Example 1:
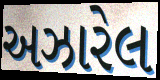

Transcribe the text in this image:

અઝારેલ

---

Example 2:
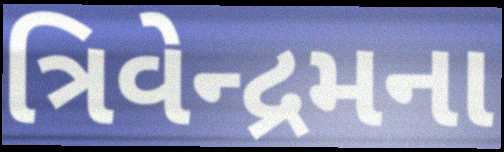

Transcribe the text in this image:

ત્રિવેન્દ્રમના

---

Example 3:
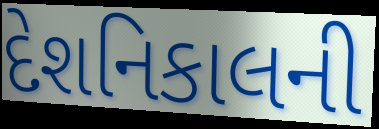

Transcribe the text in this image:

દેશનિકાલની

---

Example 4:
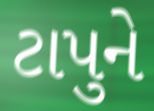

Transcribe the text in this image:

ટાપુને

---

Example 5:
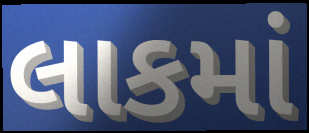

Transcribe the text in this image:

લાકમાં